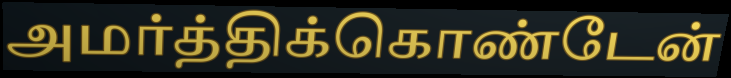
அமர்த்திக்கொண்டேன்